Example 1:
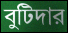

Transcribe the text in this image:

বুটিদার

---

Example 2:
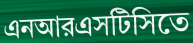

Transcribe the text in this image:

এনআরএসটিসিতে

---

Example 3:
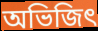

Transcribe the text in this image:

অভিজিৎ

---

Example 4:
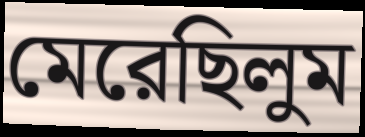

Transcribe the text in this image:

মেরেছিলুম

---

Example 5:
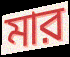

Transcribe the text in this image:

মার